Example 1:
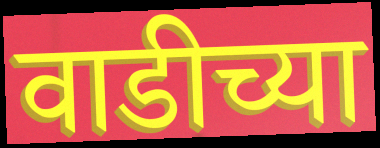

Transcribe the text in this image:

वाडीच्या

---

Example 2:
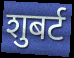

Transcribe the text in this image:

शुबर्ट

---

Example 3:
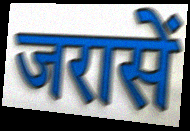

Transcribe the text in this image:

जरासें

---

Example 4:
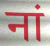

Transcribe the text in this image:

नां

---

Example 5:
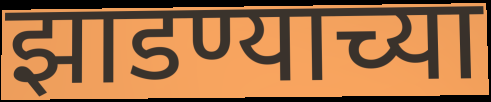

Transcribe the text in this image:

झाडण्याच्या